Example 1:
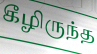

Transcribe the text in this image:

கீழிருந்த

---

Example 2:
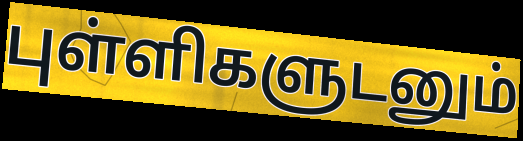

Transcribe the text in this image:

புள்ளிகளுடனும்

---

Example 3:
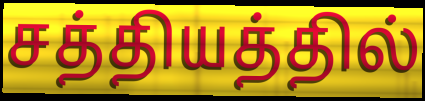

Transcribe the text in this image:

சத்தியத்தில்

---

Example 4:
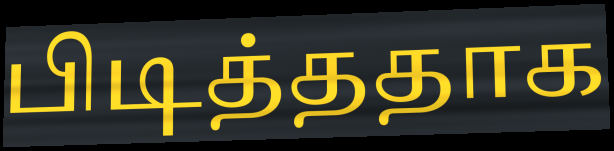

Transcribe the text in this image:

பிடித்ததாக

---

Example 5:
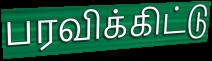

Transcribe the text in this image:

பரவிக்கிட்டு